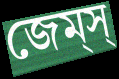
জেম্স্